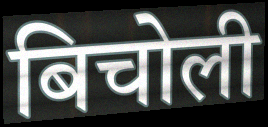
बिचोली